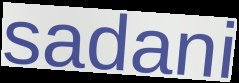
sadani